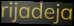
rijadeja